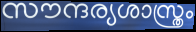
സൗന്ദര്യശാസ്ത്രം